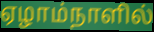
ஏழாம்நாளில்